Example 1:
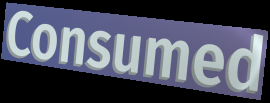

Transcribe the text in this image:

Consumed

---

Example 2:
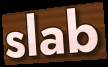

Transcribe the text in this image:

slab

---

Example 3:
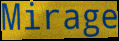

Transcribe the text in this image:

Mirage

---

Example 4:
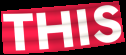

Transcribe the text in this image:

THIS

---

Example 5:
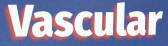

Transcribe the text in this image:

Vascular